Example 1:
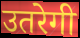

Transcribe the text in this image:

उतरेगी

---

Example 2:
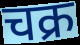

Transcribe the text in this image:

चक्र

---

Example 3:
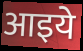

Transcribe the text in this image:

आइये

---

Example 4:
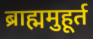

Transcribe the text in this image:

ब्राह्ममुहूर्त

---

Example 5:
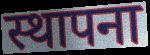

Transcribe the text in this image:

स्थापना